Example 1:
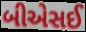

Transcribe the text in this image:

બીએસઈ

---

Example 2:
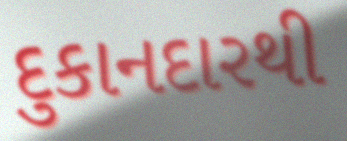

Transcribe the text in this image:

દુકાનદારથી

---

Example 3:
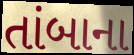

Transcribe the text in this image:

તાંબાના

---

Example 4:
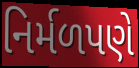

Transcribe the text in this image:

નિર્મળપણે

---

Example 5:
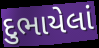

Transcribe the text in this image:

દુભાયેલાં